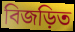
বিজড়িত